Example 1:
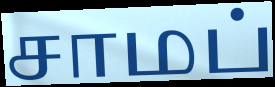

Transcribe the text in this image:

சாமப்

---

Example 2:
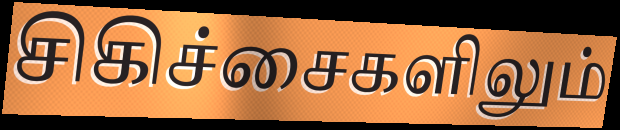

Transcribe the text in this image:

சிகிச்சைகளிலும்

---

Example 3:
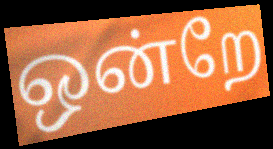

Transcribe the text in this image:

ஒன்றே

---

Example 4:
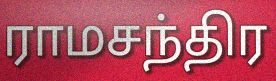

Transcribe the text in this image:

ராமசந்திர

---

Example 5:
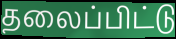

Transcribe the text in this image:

தலைப்பிட்டு